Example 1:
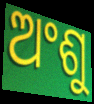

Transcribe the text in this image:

ଅଂଶୁ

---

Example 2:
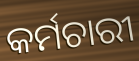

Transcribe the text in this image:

କର୍ମଚାରୀ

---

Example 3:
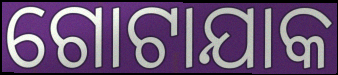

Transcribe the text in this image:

ଗୋଟାଯାକ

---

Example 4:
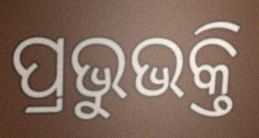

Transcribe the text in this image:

ପ୍ରଭୁଭକ୍ତି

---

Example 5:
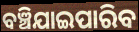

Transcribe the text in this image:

ବଞ୍ଚିଯାଇପାରିବ